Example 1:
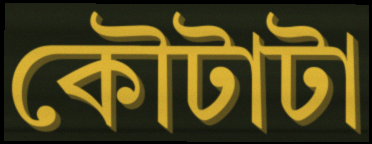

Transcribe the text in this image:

কৌটাটা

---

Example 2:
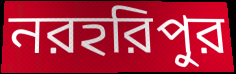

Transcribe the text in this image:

নরহরিপুর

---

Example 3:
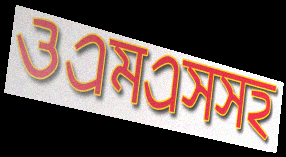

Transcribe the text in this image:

ওএমএসসহ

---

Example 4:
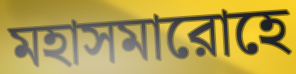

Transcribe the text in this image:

মহাসমারোহে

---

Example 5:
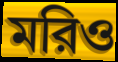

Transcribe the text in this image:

মরিও